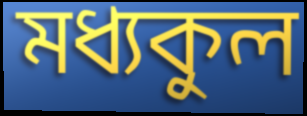
মধ্যকুল